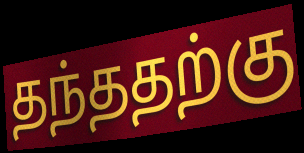
தந்ததற்கு